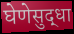
घेणेसुद्धा